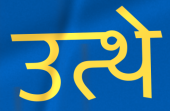
उत्थे